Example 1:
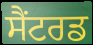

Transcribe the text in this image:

ਸੈਂਟਰਡ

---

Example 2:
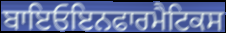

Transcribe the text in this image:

ਬਾਇਓਇਨਫਾਰਮੈਟਿਕਸ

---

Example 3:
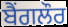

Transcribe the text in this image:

ਬੈੰਗਲੌਰ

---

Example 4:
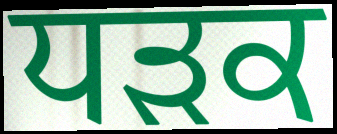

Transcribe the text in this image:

ਧਡ਼ਕ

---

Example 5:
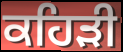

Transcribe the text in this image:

ਕਹਿੜੀ